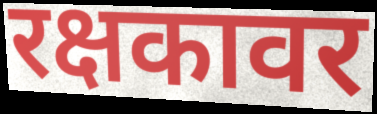
रक्षकावर